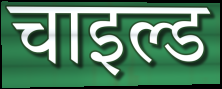
चाइल्ड